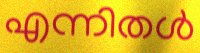
എന്നിതൾ